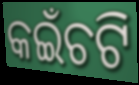
କଇଁଚଟି